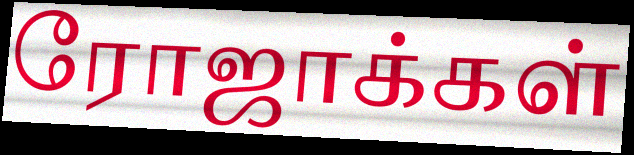
ரோஜாக்கள்